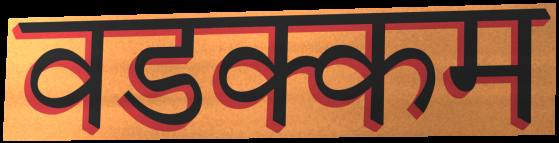
वडक्कम